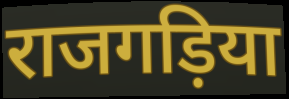
राजगड़िया